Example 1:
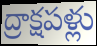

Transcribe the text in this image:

ద్రాక్షపళ్లు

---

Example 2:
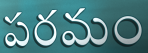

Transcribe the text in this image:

పరమం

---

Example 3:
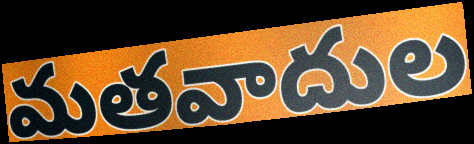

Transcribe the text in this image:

మతవాదుల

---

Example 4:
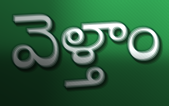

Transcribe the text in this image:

వెళ్తాం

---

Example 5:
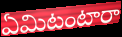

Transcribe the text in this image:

ఏమిటంటారా